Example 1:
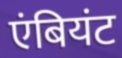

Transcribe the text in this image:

एंबियंट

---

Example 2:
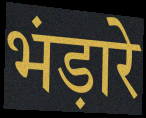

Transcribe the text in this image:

भंड़ारे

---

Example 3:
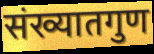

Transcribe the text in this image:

संख्यातगुण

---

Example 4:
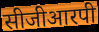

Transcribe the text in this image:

सीजीआरपी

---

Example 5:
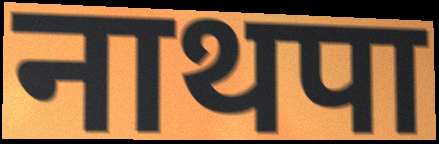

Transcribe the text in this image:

नाथपा